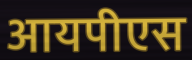
आयपीएस